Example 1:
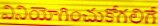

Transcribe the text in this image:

వినియోగించుకోగలిగే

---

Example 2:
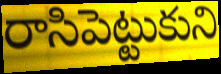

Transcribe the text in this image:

రాసిపెట్టుకుని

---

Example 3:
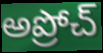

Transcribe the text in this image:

అప్రోచ్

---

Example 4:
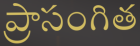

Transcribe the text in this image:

ప్రాసంగిత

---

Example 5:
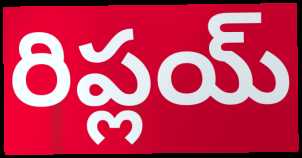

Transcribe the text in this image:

రిప్లయ్